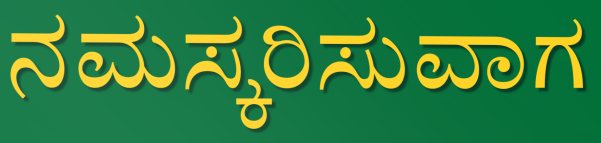
ನಮಸ್ಕರಿಸುವಾಗ